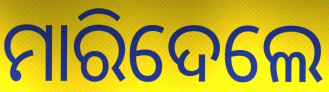
ମାରିଦେଲେ